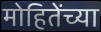
मोहितेंच्या